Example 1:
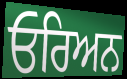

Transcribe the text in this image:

ਓਰਿਅਨ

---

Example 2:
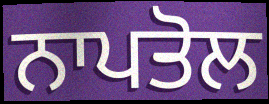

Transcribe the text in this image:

ਨਾਪਤੋਲ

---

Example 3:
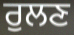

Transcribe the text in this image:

ਰੁਲਣ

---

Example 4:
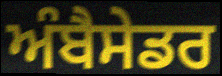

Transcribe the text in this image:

ਅੰਬੈਸੇਡਰ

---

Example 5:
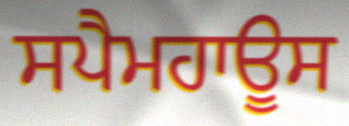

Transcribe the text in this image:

ਸਪੈਮਹਾਊਸ